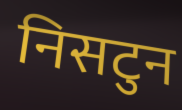
निसटुन